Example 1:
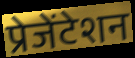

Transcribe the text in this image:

प्रेजेंटेशन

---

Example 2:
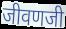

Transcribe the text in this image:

जीवणजी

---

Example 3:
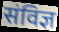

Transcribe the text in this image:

संविज्ञ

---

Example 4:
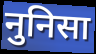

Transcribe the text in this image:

नुनिसा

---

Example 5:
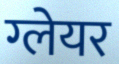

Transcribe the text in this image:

ग्लेयर